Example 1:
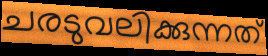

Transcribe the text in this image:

ചരടുവലിക്കുന്നത്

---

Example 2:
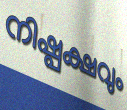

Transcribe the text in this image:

നിഷ്പക്ഷവും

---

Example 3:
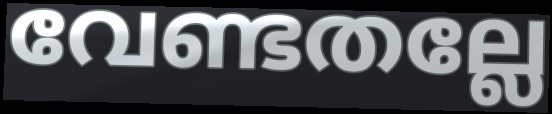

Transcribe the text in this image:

വേണ്ടതല്ലേ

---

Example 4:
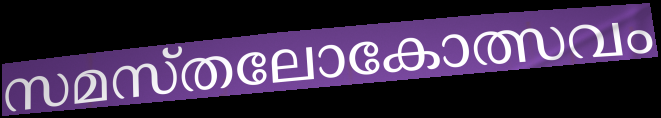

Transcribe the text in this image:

സമസ്തലോകോത്സവം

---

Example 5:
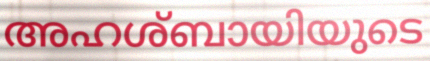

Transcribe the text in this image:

അഹശ്ബായിയുടെ